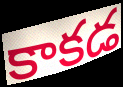
కాకడ